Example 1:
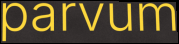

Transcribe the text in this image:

parvum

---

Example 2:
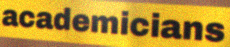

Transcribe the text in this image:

academicians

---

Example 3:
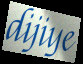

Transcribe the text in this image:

dijiye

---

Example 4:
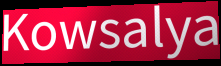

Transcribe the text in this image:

Kowsalya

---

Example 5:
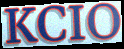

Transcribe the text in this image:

KCIO